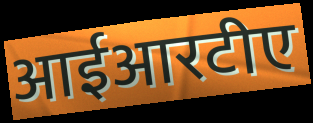
आईआरटीए